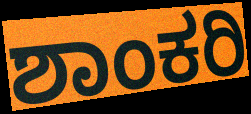
ಶಾಂಕರಿ